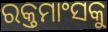
ରକ୍ତମାଂସକୁ